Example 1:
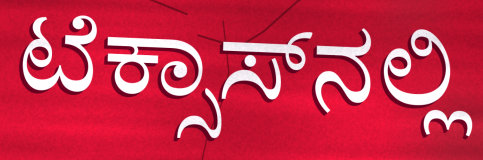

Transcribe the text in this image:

ಟೆಕ್ಸಾಸ್‌ನಲ್ಲಿ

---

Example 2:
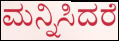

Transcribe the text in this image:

ಮನ್ನಿಸಿದರೆ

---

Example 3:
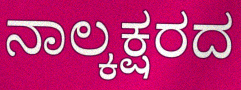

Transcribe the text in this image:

ನಾಲ್ಕಕ್ಷರದ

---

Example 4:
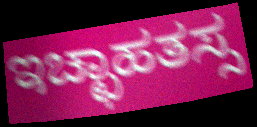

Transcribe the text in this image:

ಇಚ್ಛಾಹತಸ್ಸ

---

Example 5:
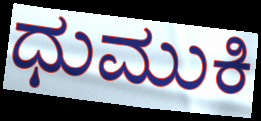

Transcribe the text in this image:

ಧುಮುಕಿ